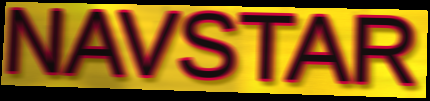
NAVSTAR